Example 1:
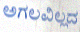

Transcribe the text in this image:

ಅಗಲವಿಲ್ಲದ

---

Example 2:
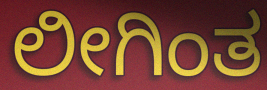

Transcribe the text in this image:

ಲೀಗಿಂತ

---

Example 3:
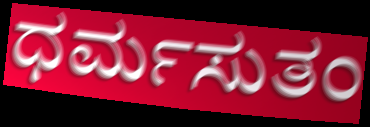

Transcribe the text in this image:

ಧರ್ಮಸುತಂ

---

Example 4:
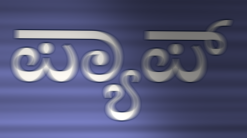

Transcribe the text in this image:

ಪ್ಯಾಪ್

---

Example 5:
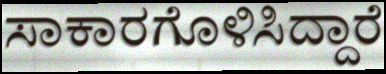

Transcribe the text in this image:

ಸಾಕಾರಗೊಳಿಸಿದ್ದಾರೆ